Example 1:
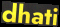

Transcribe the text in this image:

dhati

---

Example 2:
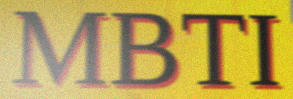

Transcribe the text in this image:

MBTI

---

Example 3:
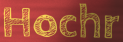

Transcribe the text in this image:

Hochr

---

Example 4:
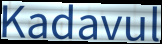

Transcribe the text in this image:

Kadavul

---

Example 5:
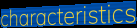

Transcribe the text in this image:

characteristics